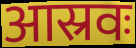
आस्रवः